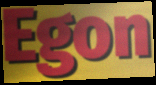
Egon